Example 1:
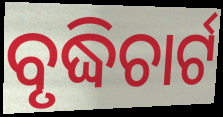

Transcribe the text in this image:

ବୃଦ୍ଧିଚାର୍ଟ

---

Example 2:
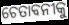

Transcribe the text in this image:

ଚେତାବନୀକୁ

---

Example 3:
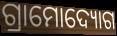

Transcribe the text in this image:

ଗ୍ରାମୋଦ୍ୟୋଗ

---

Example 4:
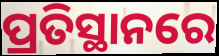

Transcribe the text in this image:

ପ୍ରତିସ୍ଥାନରେ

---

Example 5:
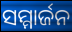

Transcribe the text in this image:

ସମ୍ମାର୍ଜନ